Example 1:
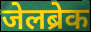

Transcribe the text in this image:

जेलब्रेक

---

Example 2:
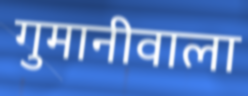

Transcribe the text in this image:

गुमानीवाला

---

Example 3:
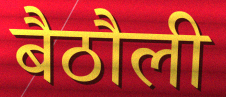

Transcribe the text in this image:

बैठौली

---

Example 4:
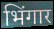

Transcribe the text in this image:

भिंगार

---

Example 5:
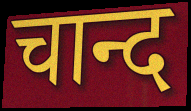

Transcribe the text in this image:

चान्द